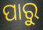
ପାରୁ